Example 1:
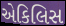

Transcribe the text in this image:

એકિલિસ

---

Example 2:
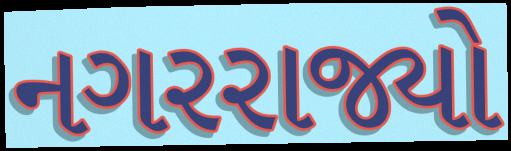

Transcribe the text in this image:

નગરરાજ્યો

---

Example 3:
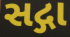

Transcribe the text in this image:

સદ્ગા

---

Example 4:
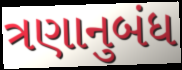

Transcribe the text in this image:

ત્રણાનુબંધ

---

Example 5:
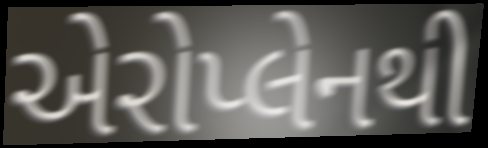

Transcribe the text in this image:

એરોપ્લેનથી